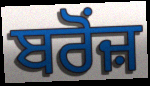
ਬਰੋਂਜ਼